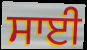
ਸਾਈ